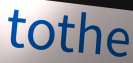
tothe